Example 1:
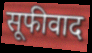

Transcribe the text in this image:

सूफीवाद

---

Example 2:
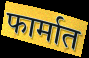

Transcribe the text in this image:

फार्मात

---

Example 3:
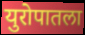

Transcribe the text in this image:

युरोपातला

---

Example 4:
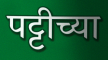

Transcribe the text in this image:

पट्टीच्या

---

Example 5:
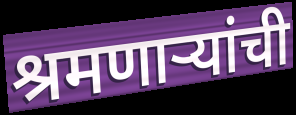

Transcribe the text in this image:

श्रमणाऱ्यांची